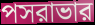
পসরাভার